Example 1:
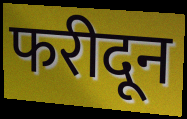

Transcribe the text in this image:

फरीदून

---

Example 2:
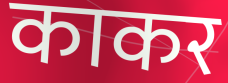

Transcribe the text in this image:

काकर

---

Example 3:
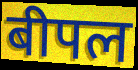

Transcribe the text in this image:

बीपल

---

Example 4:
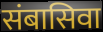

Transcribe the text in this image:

संबासिवा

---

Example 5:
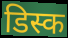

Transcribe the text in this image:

डिस्क